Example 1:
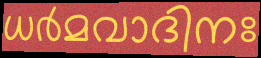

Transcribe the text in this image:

ധർമവാദിനഃ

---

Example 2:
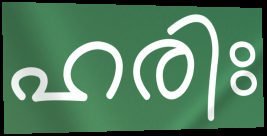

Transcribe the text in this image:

ഹരിഃ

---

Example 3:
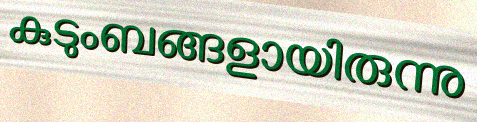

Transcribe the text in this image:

കുടുംബങ്ങളായിരുന്നു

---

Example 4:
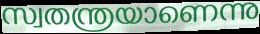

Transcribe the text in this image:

സ്വതന്ത്രയാണെന്നു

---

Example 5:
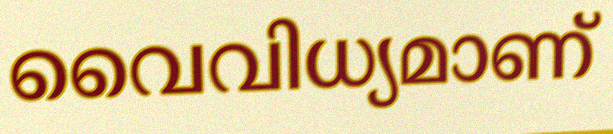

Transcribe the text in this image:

വൈവിധ്യമാണ്